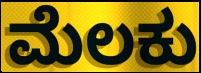
ಮೆಲಕು